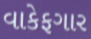
વાકેફગાર